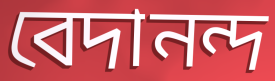
বেদানন্দ